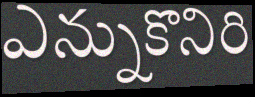
ఎన్నుకొనిరి